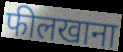
फीलखाना